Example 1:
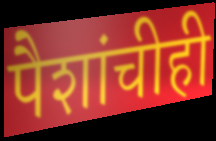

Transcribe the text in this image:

पैशांचीही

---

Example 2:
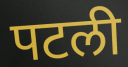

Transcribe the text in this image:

पटली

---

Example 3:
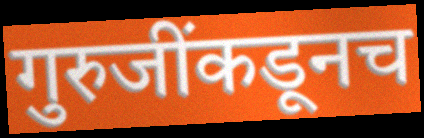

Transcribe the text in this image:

गुरुजींकडूनच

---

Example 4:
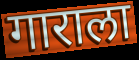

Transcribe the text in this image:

गाराला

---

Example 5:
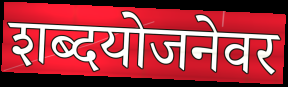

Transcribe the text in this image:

शब्दयोजनेवर